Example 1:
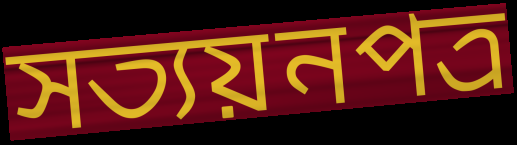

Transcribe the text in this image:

সত্যয়নপত্র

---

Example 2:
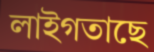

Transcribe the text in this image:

লাইগতাছে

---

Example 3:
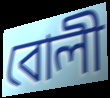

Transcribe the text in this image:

বোলী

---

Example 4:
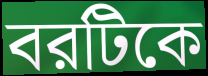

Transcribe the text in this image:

বরটিকে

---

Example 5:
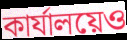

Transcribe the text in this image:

কার্যালয়েও